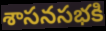
శాసనసభకి